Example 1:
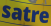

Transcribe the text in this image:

satre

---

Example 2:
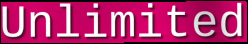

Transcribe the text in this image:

Unlimited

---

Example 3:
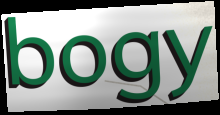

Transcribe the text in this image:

bogy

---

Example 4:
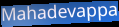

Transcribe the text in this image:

Mahadevappa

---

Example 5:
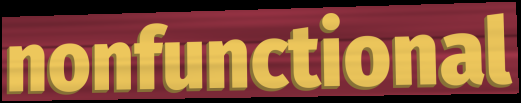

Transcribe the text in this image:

nonfunctional